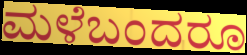
ಮಳೆಬಂದರೂ